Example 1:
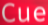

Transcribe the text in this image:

Cue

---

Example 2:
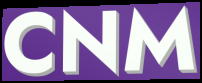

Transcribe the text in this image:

CNM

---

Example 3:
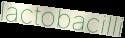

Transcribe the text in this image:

lactobacilli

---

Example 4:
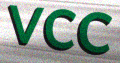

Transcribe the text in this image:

vcc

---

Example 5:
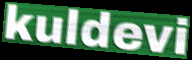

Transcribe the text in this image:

kuldevi